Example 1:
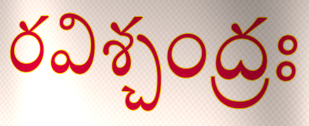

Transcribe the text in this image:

రవిశ్చంద్రః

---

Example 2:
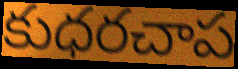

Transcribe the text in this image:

కుధరచాప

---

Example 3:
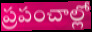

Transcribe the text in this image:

ప్రపంచాల్లో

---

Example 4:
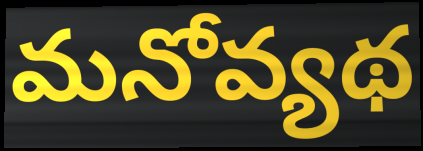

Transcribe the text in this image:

మనోవ్యథ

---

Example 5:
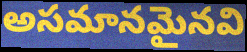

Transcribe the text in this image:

అసమానమైనవి